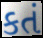
કતં